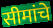
सीमांचे